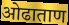
ओढाताण